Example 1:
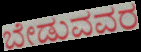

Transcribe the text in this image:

ಬೇಡುವವರ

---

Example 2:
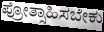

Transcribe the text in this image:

ಪ್ರೋತ್ಸಾಹಿಸಬೇಕು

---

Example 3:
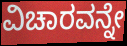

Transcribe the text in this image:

ವಿಚಾರವನ್ನೇ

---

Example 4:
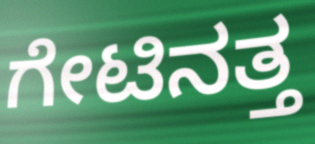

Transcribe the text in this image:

ಗೇಟಿನತ್ತ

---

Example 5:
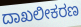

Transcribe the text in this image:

ದಾಖಲೀಕರಣ